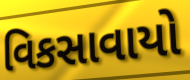
વિકસાવાયો